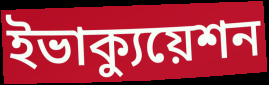
ইভাক্যুয়েশন